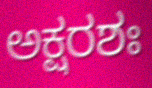
ಅಕ್ಷರಶಃ